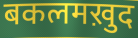
बकलमख़ुद